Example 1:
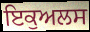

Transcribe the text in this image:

ਇਕੁਅਲਸ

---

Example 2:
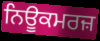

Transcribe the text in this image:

ਨਿਊਕਮਰਜ਼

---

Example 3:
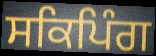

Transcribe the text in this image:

ਸਕਿਪਿੰਗ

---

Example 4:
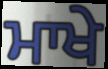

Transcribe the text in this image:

ਮਾਖੇ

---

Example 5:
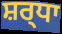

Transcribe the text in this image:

ਸ਼ਰ੍ਧਾ